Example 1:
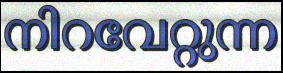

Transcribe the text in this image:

നിറവേറ്റുന്ന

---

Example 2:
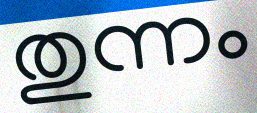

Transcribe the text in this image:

തുന്നം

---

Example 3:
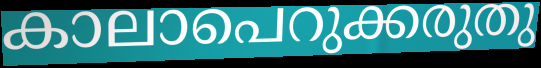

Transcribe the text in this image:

കാലാപെറുക്കരുതു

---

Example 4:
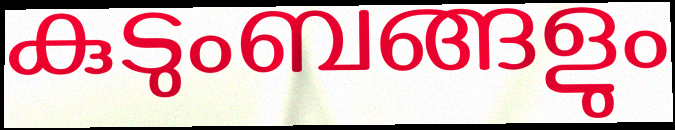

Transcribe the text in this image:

കുടുംബങ്ങളും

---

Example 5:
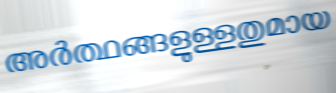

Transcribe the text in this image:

അർത്ഥങ്ങളുള്ളതുമായ